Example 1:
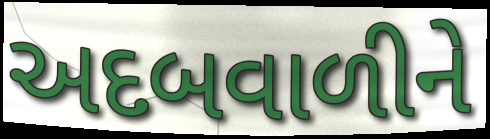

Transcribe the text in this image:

અદબવાળીને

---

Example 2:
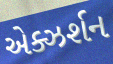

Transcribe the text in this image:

એક્ઝર્શન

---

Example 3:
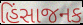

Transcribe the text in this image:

હિંસાજનક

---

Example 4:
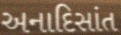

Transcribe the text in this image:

અનાદિસાંત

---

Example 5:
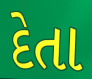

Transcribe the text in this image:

દેતા